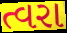
ત્વરા